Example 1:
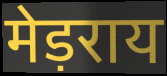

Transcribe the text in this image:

मेड़राय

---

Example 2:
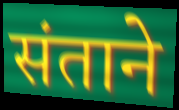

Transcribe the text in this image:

संताने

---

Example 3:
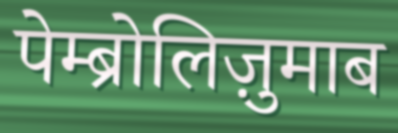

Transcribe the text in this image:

पेम्ब्रोलिज़ुमाब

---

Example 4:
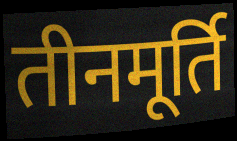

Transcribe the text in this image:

तीनमूर्ति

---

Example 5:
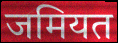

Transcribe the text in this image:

जमियत